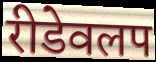
रीडेवलप